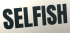
SELFISH